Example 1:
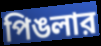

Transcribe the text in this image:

পিঙলার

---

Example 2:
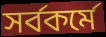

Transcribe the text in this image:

সর্বকর্মে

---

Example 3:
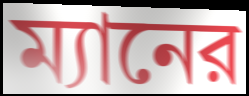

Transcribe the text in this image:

ম্যানের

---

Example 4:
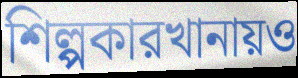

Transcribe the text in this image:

শিল্পকারখানায়ও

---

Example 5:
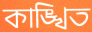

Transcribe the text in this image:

কাঙ্খিত